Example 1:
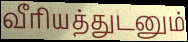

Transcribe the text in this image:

வீரியத்துடனும்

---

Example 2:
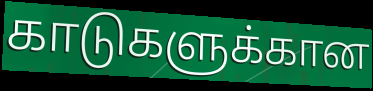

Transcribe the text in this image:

காடுகளுக்கான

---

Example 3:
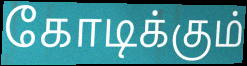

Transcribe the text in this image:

கோடிக்கும்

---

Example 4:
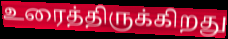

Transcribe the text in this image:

உரைத்திருக்கிறது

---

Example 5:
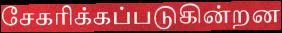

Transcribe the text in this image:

சேகரிக்கப்படுகின்றன